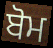
ਬੋਮ